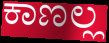
ಕಾಣಲ್ಲ